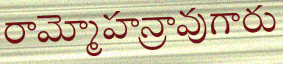
రామ్మోహన్రావుగారు